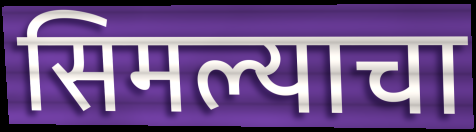
सिमल्याचा